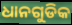
ଧାନଗୁଡିକ